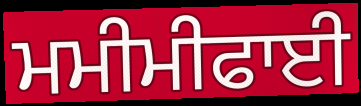
ਮਮੀਮੀਫਾਈ